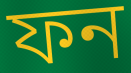
ফন